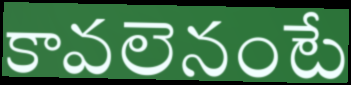
కావలెనంటే